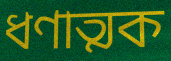
ধণাত্মক